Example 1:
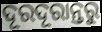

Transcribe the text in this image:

ଦୂରଦୂରାନ୍ତରୁ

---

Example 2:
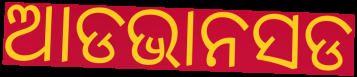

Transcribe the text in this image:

ଆଡଭାନସଡ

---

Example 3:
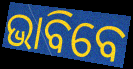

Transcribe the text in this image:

ଭାବିବେ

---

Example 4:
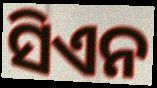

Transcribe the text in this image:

ସିଏନ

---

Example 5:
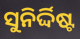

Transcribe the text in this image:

ସୁନିର୍ଦ୍ଦିଷ୍ଟ